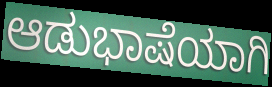
ಆಡುಭಾಷೆಯಾಗಿ